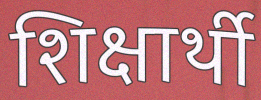
शिक्षार्थी